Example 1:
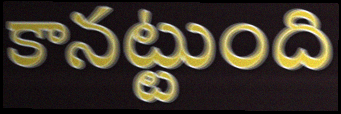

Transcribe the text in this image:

కానట్టుంది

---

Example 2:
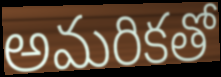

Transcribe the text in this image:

అమరికతో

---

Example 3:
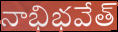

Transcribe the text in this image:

నాభిభవేత్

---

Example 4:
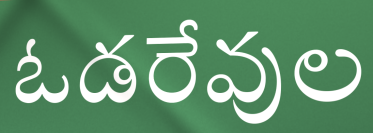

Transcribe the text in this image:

ఓడరేవుల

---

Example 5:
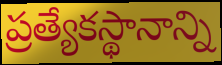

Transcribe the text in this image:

ప్రత్యేకస్థానాన్ని